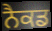
ਨੈਕਡ